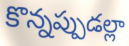
కొన్నప్పుడల్లా